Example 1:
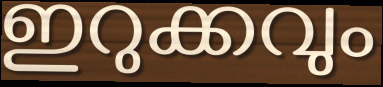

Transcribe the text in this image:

ഇറുക്കവും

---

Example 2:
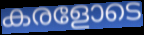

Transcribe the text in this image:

കരളോടെ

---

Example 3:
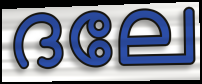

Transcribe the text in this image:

ദലേ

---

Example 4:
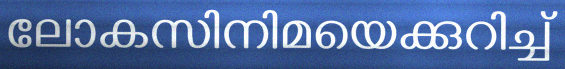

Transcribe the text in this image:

ലോകസിനിമയെക്കുറിച്ച്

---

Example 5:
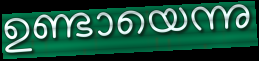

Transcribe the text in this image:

ഉണ്ടായെന്നു